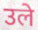
उले